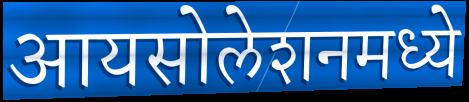
आयसोलेशनमध्ये